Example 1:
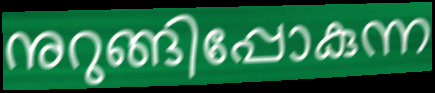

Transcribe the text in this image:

നുറുങ്ങിപ്പോകുന്ന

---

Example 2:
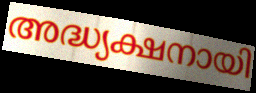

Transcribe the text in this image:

അദ്ധ്യക്ഷനായി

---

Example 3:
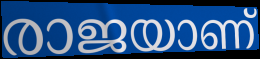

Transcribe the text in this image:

രാജയാണ്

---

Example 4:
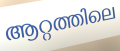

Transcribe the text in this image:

ആറ്റത്തിലെ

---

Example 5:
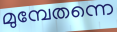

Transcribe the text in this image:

മുമ്പേതന്നെ